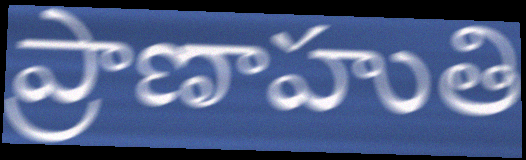
ప్రాణాహుతి